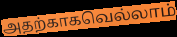
அதற்காகவெல்லாம்